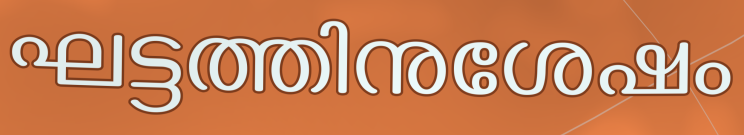
ഘട്ടത്തിനുശേഷം